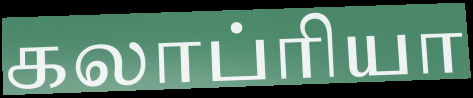
கலாப்ரியா